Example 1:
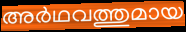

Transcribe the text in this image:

അർഥവത്തുമായ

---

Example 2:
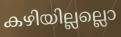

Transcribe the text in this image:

കഴിയില്ലല്ലൊ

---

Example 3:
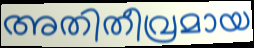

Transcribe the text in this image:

അതിതീവ്രമായ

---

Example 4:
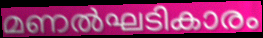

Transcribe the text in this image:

മണൽഘടികാരം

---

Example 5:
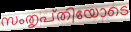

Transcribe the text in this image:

സംതൃപ്‌തിയോടെ